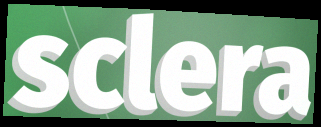
sclera